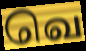
வெ